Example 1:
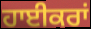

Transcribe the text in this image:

ਹਾਈਕਰਾਂ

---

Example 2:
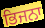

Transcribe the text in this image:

ਭਿਜਨਾ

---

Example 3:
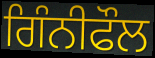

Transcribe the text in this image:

ਗਿੰਨੀਫੌਲ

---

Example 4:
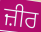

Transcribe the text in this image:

ਜ਼ੀਰ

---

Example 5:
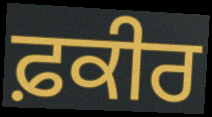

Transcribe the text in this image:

ਫ਼ਕੀਰ